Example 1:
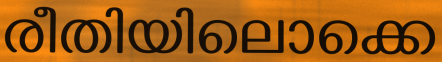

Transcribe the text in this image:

രീതിയിലൊക്കെ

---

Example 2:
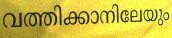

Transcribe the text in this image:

വത്തിക്കാനിലേയും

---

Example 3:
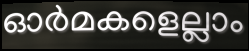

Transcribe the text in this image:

ഓർമകളെല്ലാം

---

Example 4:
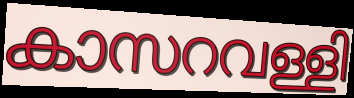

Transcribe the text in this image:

കാസറവള്ളി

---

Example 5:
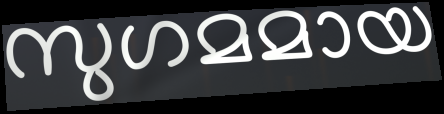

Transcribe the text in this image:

സുഗമമായ